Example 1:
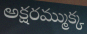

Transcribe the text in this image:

అక్షరమ్ముక్క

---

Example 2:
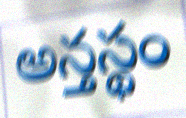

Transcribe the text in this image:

అన్తస్థం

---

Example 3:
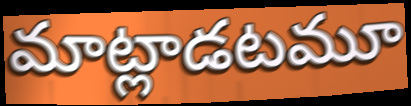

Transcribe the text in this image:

మాట్లాడటమూ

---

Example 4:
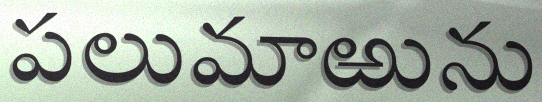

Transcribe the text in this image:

పలుమాఱును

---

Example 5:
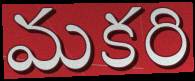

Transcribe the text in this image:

మకరి